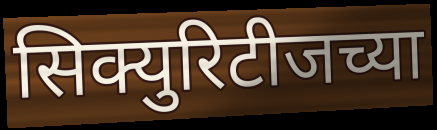
सिक्युरिटीजच्या